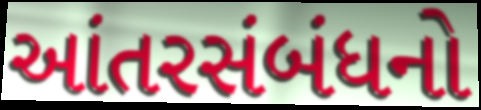
આંતરસંબંધનો